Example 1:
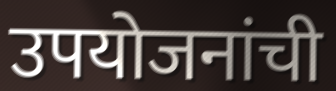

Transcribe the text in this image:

उपयोजनांची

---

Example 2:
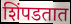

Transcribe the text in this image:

शिंपडतात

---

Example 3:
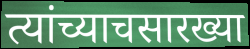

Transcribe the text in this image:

त्यांच्याचसारख्या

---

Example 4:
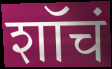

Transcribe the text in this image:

शॉचं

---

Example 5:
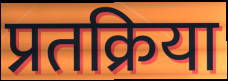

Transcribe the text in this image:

प्रतक्रिया